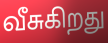
வீசுகிறது